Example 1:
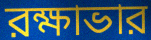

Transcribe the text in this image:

রক্ষাভার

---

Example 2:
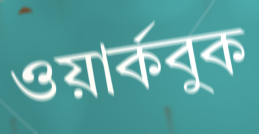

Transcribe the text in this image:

ওয়ার্কবুক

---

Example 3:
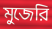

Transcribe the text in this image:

মুজেরি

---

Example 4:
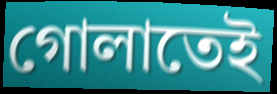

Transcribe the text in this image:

গোলাতেই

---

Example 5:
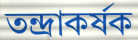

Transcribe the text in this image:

তন্দ্রাকর্ষক